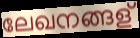
ലേഖനങ്ങള്